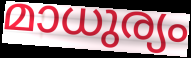
മാധുര്യം